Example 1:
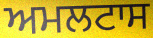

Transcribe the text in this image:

ਅਮਲਟਾਸ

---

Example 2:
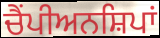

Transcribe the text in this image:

ਚੈਂਪੀਅਨਸ਼ਿਪਾਂ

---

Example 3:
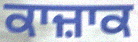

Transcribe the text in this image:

ਕਾਜ਼ਾਕ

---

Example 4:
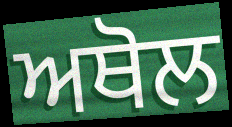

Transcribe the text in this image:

ਅਥੋਲ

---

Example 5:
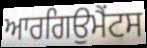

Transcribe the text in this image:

ਆਰਗਿਉਮੈਂਟਸ